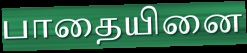
பாதையினை